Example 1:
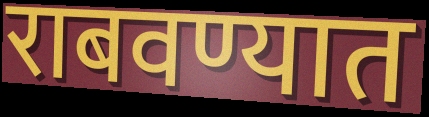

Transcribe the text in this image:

राबवण्यात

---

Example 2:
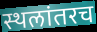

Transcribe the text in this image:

स्थलांतरच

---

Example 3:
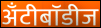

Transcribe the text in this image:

अँटीबॉडीज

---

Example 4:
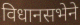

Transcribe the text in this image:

विधानसभेने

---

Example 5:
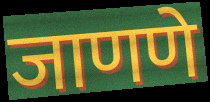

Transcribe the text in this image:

जाणणे